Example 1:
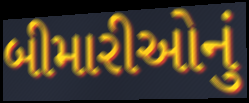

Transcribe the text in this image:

બીમારીઓનું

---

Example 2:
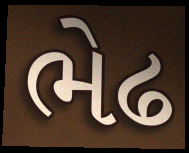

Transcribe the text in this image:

ભેઢ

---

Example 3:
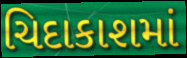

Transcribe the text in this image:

ચિદાકાશમાં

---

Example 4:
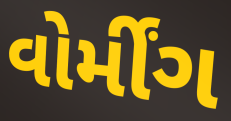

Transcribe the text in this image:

વોર્મીંગ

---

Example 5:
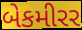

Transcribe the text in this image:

બેકમીરર